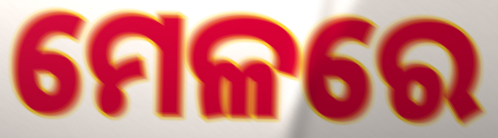
ମେଳରେ